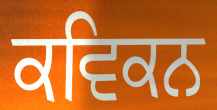
ਕਵਿਕਨ